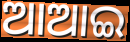
ଆଆଇ